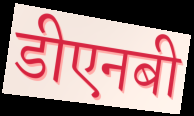
डीएनबी